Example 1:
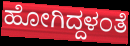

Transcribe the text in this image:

ಹೋಗಿದ್ದಳಂತೆ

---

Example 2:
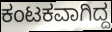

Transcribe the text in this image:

ಕಂಟಕವಾಗಿದ್ದ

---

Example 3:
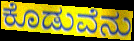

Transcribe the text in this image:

ಕೊಡುವೆನು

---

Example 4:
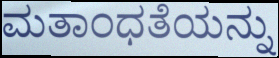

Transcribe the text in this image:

ಮತಾಂಧತೆಯನ್ನು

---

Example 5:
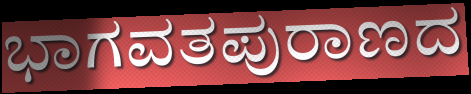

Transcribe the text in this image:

ಭಾಗವತಪುರಾಣದ